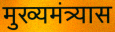
मुख्यमंत्र्यास